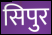
सिपुर